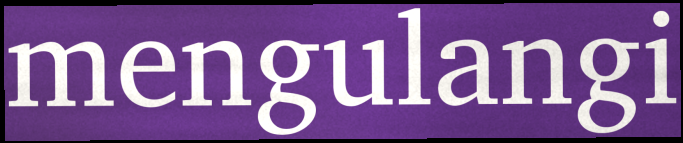
mengulangi